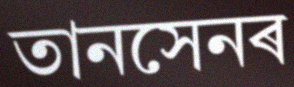
তানসেনৰ